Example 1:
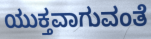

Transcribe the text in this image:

ಯುಕ್ತವಾಗುವಂತೆ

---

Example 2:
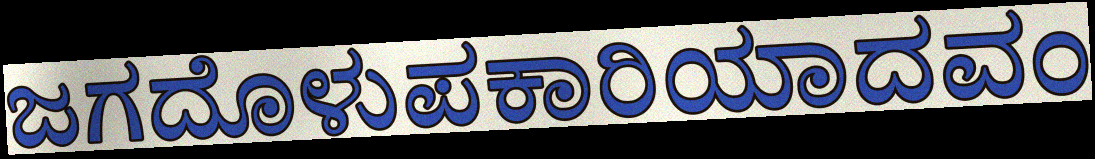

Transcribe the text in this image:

ಜಗದೊಳುಪಕಾರಿಯಾದವಂ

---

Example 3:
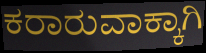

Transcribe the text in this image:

ಕರಾರುವಾಕ್ಕಾಗಿ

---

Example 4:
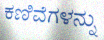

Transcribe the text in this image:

ಕಣಿವೆಗಳನ್ನು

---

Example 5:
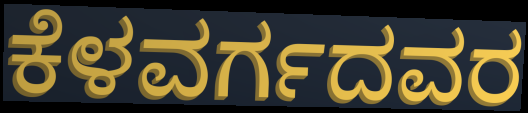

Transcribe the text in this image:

ಕೆಳವರ್ಗದವರ